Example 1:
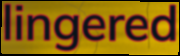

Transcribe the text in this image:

lingered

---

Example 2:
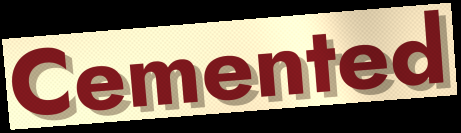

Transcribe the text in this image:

Cemented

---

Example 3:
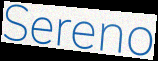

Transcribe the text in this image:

Sereno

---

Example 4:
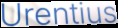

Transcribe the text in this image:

Urentius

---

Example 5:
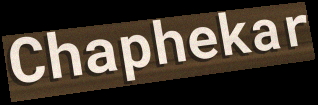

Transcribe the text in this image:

Chaphekar